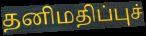
தனிமதிப்புச்